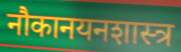
नौकानयनशास्त्र